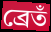
ব্রেতঁ